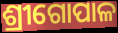
ଶ୍ରୀଗୋପାଳ